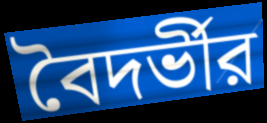
বৈদর্ভীর